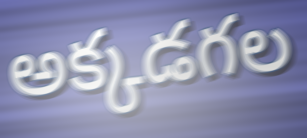
అక్కడగల